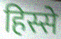
हिस्से